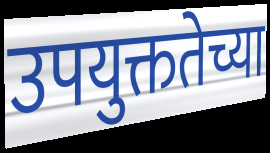
उपयुक्ततेच्या